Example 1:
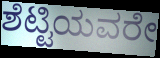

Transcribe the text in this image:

ಶೆಟ್ಟಿಯವರೇ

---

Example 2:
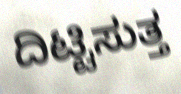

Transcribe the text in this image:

ದಿಟ್ಟಿಸುತ್ತ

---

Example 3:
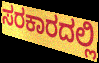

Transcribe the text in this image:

ಸರಕಾರದಲ್ಲಿ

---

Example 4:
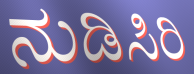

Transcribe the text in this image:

ನುಡಿಸಿರಿ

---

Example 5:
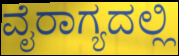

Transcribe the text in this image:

ವೈರಾಗ್ಯದಲ್ಲಿ